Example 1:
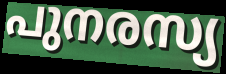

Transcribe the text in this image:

പുനരസ്യ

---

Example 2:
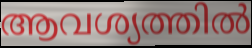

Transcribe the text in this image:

ആവശ്യത്തിൽ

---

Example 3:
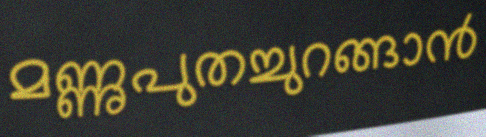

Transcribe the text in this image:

മണ്ണുപുതച്ചുറങ്ങാൻ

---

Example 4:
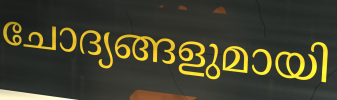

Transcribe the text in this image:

ചോദ്യങ്ങളുമായി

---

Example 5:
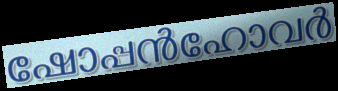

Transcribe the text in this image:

ഷോപ്പൻഹോവർ